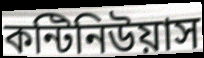
কন্টিনিউয়াস